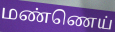
மண்ணெய்